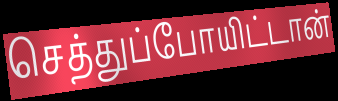
செத்துப்போயிட்டான்